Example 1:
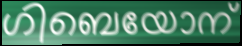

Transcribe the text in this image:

ഗിബെയോന്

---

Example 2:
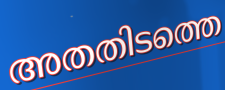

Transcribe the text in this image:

അതതിടത്തെ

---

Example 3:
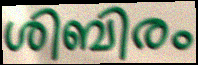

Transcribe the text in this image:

ശിബിരം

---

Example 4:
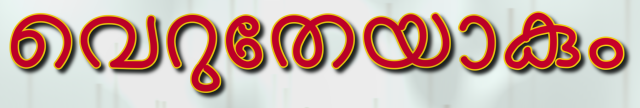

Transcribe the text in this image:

വെറുതേയാകും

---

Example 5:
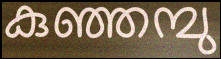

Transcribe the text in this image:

കുഞ്ഞമ്പു